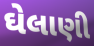
ઘેલાણી